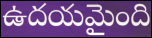
ఉదయమైంది